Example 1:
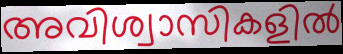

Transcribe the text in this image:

അവിശ്വാസികളിൽ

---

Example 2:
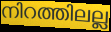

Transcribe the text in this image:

നിറത്തിലല്ല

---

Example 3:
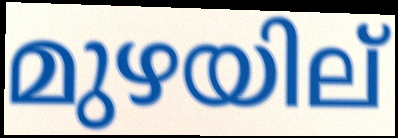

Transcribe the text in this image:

മുഴയില്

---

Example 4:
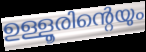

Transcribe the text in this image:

ഉള്ളൂരിന്റെയും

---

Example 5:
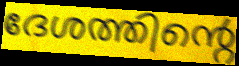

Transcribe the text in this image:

ദേശത്തിന്റെ